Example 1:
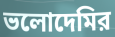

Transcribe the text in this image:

ভলোদেমির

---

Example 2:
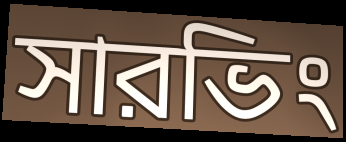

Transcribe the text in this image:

সারভিং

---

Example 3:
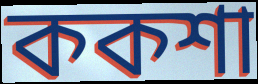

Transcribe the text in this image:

ককশা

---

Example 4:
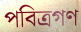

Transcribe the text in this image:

পবিত্রগণ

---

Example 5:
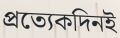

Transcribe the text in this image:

প্রত্যেকদিনই